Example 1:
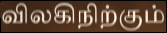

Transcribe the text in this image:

விலகிநிற்கும்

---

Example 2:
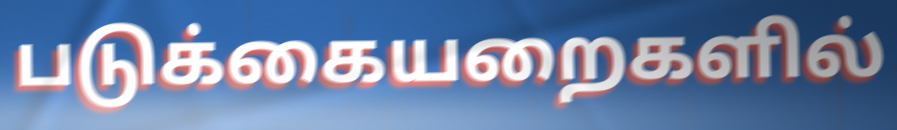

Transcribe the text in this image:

படுக்கையறைகளில்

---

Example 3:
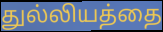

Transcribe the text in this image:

துல்லியத்தை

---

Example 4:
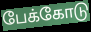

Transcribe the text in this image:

பேக்கோடு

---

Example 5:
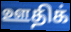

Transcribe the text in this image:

ஊதிக்